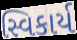
સ્વિકાર્ય